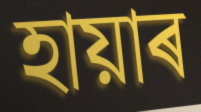
হায়াৰ